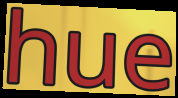
hue